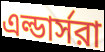
এল্ডার্সরা